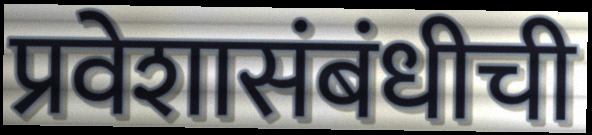
प्रवेशासंबंधीची